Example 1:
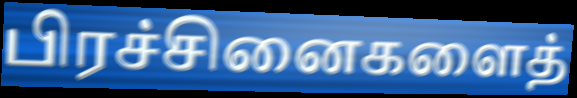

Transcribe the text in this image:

பிரச்சினைகளைத்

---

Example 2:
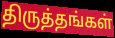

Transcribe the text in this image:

திருத்தங்கள்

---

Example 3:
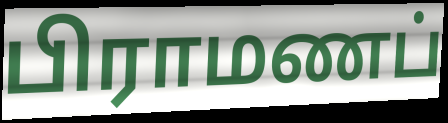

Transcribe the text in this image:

பிராமணப்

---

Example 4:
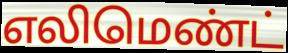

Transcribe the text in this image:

எலிமெண்ட்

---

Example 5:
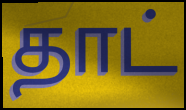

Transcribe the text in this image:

தாட்